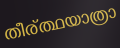
തീര്ത്ഥയാത്രാ